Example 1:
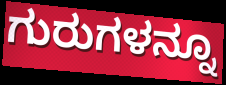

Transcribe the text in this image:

ಗುರುಗಳನ್ನೂ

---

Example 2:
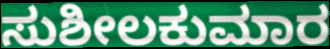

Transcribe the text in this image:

ಸುಶೀಲಕುಮಾರ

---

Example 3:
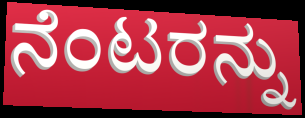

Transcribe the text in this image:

ನೆಂಟರನ್ನು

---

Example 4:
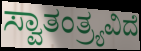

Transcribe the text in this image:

ಸ್ವಾತಂತ್ರ್ಯವಿದೆ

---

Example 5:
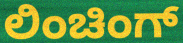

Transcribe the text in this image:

ಲಿಂಚಿಂಗ್